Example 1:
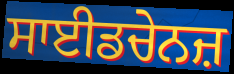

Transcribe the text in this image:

ਸਾਈਡਚੇਨਜ਼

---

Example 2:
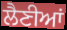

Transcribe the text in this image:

ਲੈਣੀਆਂ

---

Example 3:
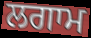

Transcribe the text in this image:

ਲਗਾਮ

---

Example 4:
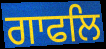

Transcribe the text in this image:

ਗਾਫਲਿ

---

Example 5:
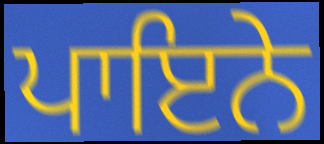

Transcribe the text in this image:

ਪਾਇਨੇ